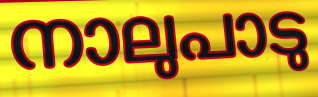
നാലുപാടു